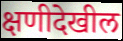
क्षणीदेखील